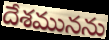
దేశమునను